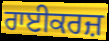
ਰਾਈਕਰਜ਼